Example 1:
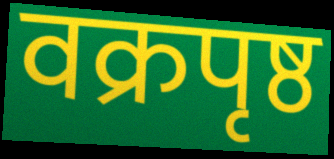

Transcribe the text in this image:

वक्रपृष्ठ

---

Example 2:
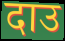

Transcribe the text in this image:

दाउ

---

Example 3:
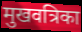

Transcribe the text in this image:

मुखवत्रिका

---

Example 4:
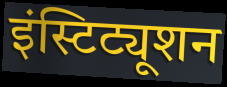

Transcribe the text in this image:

इंस्टिट्यूशन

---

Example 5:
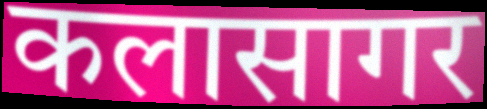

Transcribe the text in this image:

कलासागर